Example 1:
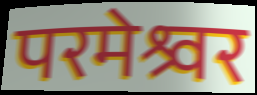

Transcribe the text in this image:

परमेश्र्वर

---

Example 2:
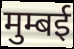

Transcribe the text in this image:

मुम्बई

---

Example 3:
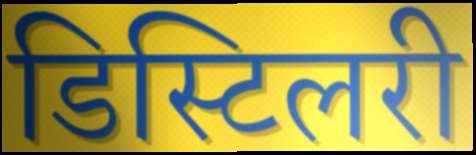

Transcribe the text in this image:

डिस्टिलरी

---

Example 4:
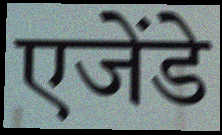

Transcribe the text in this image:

एजेंडे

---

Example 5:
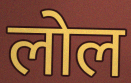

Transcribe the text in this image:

लोल